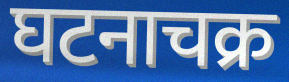
घटनाचक्र